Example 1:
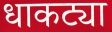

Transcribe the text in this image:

धाकट्या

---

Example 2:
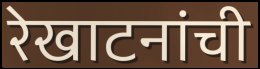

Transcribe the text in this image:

रेखाटनांची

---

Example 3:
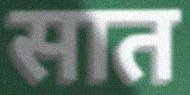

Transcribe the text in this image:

सात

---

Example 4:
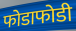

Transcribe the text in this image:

फोडाफोडी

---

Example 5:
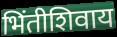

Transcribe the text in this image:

भिंतीशिवाय